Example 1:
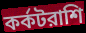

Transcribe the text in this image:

কর্কটরাশি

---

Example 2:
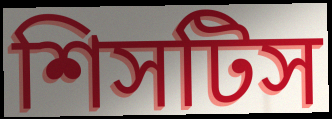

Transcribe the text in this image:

শিসটিস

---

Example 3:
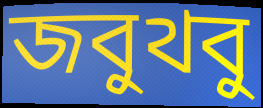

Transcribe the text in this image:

জবুথবু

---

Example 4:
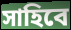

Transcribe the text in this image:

সাহিবে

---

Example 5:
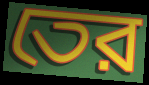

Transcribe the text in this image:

তের